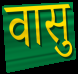
वासु